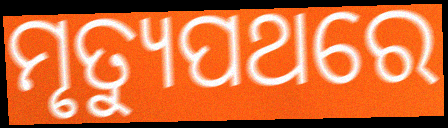
ମୃତ୍ୟୁପଥରେ